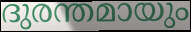
ദുരന്തമായും